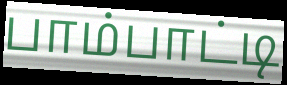
பாம்பாட்டி